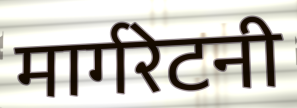
मार्गरेटनी